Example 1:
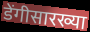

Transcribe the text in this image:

डेंगीसारख्या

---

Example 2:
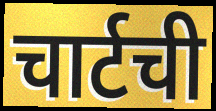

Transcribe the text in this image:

चार्टची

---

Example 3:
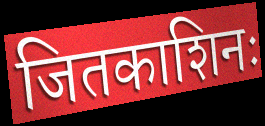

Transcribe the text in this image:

जितकाशिनः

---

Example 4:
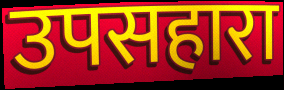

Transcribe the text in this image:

उपसहारा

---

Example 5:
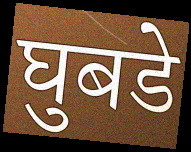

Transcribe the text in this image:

घुबडे